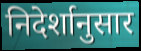
निदेर्शानुसार